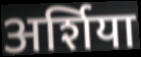
अर्शिया